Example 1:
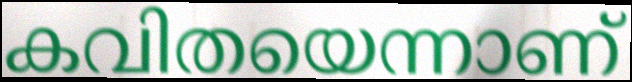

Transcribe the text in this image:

കവിതയെന്നാണ്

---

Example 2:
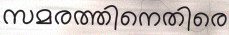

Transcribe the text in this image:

സമരത്തിനെതിരെ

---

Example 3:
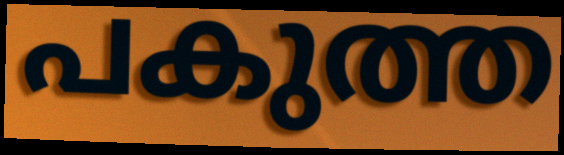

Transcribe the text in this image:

പകുത്ത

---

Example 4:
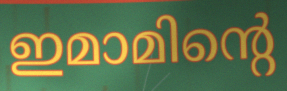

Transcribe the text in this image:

ഇമാമിന്റെ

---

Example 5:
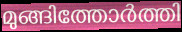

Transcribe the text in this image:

മുങ്ങിത്തോർത്തി